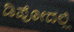
ಡಿಪೋದಲ್ಲಿ